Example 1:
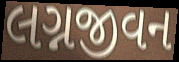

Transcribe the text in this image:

લગ્નજીવન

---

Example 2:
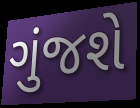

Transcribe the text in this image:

ગુંજશે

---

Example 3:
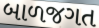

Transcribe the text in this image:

બાળજગત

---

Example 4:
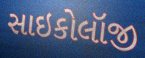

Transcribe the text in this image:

સાઇકોલૉજી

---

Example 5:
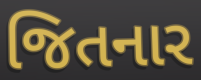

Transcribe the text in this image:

જિતનાર